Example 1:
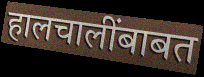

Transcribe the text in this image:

हालचालींबाबत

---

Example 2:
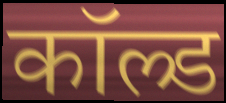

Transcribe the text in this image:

कॉल्ड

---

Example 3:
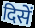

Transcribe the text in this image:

दिसें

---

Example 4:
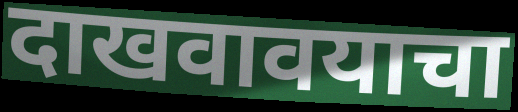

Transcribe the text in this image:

दाखवावयाचा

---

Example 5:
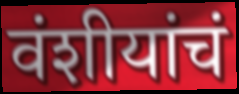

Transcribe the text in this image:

वंशीयांचं